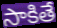
సాకితే